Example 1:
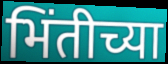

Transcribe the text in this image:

भिंतीच्या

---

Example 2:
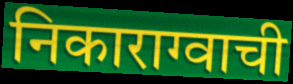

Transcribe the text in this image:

निकाराग्वाची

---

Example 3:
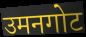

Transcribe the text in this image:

उमनगोट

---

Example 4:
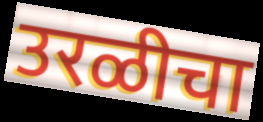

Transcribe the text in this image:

उरळीचा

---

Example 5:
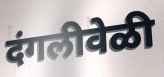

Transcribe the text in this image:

दंगलीवेळी